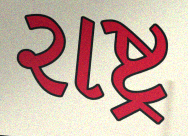
રાષ્ટ્ર